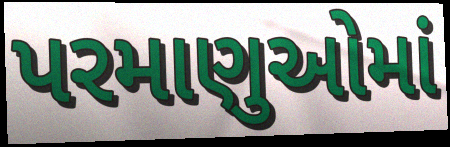
પરમાણુઓમાં